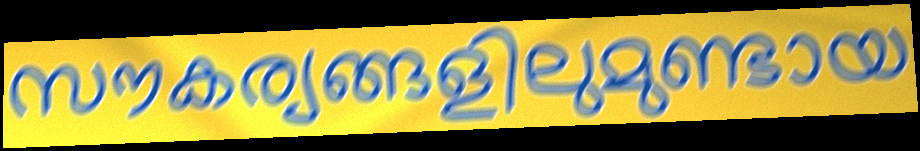
സൗകര്യങ്ങളിലുമുണ്ടായ